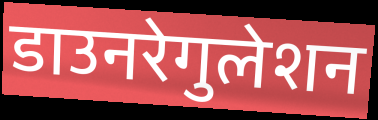
डाउनरेगुलेशन